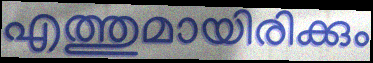
എത്തുമായിരിക്കും